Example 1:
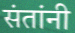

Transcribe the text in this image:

संतांनी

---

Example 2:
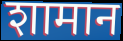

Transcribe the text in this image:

शामान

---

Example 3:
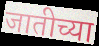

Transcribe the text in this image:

जातीच्या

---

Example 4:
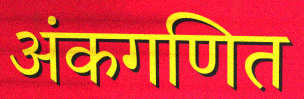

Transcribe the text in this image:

अंकगणित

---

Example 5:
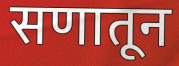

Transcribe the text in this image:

सणातून